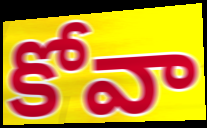
కోవా